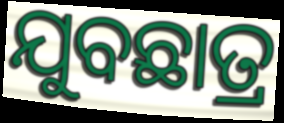
ଯୁବଛାତ୍ର